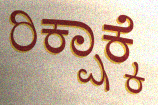
ರಿಕ್ಷಾಕ್ಕೆ